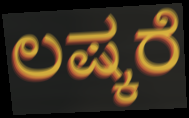
ಲಷ್ಕರೆ